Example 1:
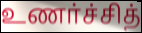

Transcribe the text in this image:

உணர்ச்சித்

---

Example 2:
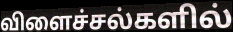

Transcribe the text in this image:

விளைச்சல்களில்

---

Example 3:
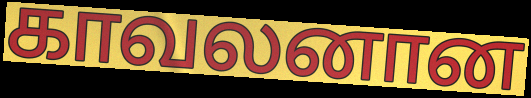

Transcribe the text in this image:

காவலனான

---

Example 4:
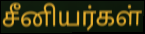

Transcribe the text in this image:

சீனியர்கள்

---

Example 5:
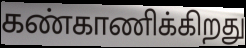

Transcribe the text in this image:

கண்காணிக்கிறது